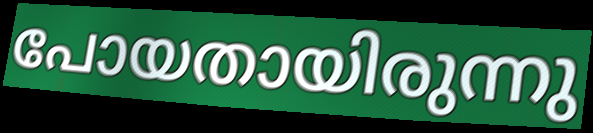
പോയതായിരുന്നു